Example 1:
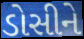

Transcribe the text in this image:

ડોસીને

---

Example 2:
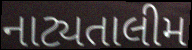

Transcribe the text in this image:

નાટ્યતાલીમ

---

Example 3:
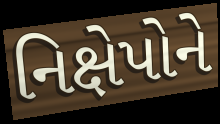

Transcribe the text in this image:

નિક્ષેપોને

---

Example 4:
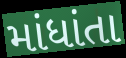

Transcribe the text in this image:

માંધાંતા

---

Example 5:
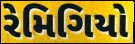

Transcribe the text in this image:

રેમિગિયો